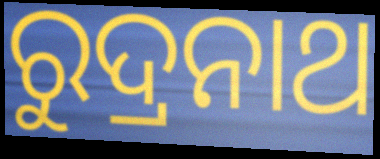
ରୁଦ୍ରନାଥ